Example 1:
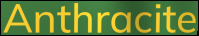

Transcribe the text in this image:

Anthracite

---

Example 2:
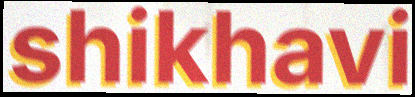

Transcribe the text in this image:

shikhavi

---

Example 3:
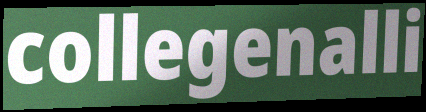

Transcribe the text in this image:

collegenalli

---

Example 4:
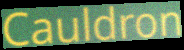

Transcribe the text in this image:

Cauldron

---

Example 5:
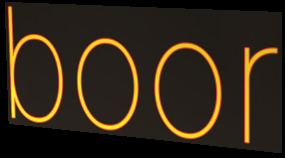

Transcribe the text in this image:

boor